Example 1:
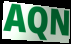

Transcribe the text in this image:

AQN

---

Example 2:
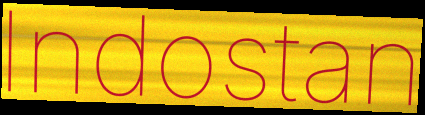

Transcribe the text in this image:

Indostan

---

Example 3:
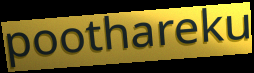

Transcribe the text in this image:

poothareku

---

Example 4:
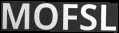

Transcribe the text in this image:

MOFSL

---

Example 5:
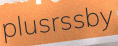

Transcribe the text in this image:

plusrssby